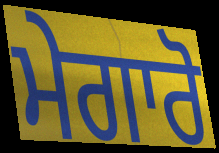
ਮੇਗਾਰੋ